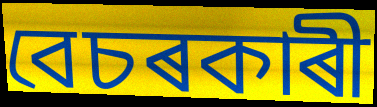
বেচৰকাৰী